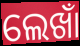
ଲେଖାଁ